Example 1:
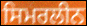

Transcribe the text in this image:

ਸਿਮਰਲੀਨ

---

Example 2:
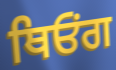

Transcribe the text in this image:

ਥਿਓਂਗ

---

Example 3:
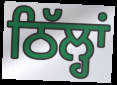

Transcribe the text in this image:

ਠਿੱਲ੍ਹਾਂ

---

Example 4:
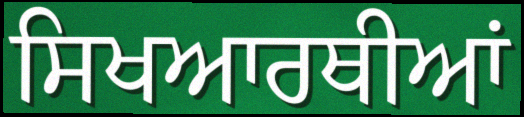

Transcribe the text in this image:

ਸਿਖਆਰਥੀਆਂ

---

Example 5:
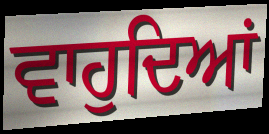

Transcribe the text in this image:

ਵਾਹੁਦਿਆਂ